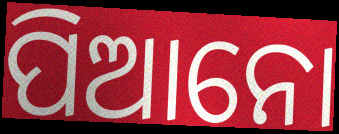
ପିଆନୋ